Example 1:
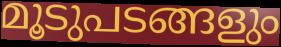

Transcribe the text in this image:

മൂടുപടങ്ങളും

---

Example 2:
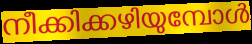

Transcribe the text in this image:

നീക്കിക്കഴിയുമ്പോൾ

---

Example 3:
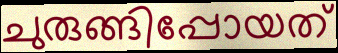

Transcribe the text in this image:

ചുരുങ്ങിപ്പോയത്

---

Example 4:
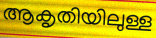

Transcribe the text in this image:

ആകൃതിയിലുള്ള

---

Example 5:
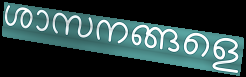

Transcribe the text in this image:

ശാസനങ്ങളെ